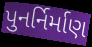
પુનર્નિર્માણ